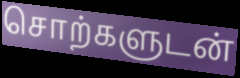
சொற்களுடன்